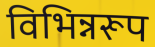
विभिन्नरूप